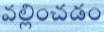
వల్లించడం